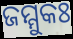
ଜମ୍ମୁକଃ